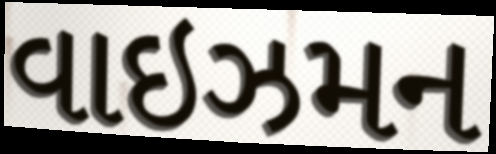
વાઇઝમન